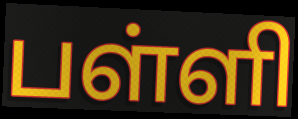
பள்ளி